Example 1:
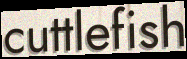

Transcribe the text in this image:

cuttlefish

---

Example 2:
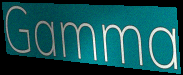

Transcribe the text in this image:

Gamma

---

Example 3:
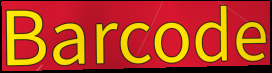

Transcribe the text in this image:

Barcode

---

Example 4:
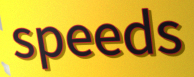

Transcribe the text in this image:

speeds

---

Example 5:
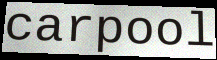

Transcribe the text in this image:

carpool